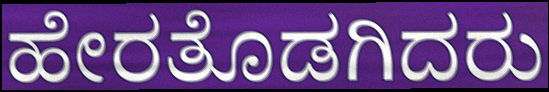
ಹೇರತೊಡಗಿದರು